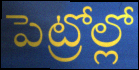
పెట్రోల్లో